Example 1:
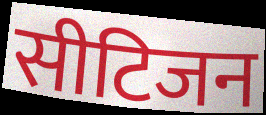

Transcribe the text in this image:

सीटिजन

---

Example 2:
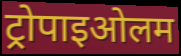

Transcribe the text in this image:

ट्रोपाइओलम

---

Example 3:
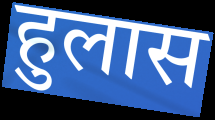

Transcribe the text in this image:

हुलास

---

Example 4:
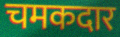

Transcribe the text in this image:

चमकदार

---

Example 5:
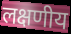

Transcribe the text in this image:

लक्षणीय